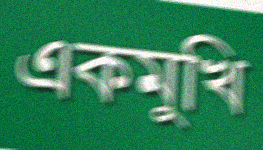
একমুখি